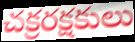
చక్రరక్షకులు